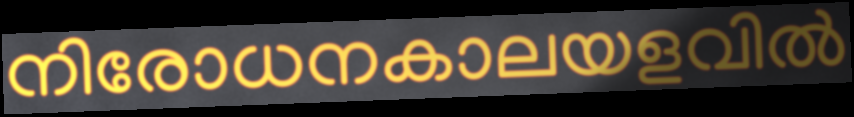
നിരോധനകാലയളവിൽ